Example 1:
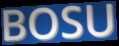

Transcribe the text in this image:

BOSU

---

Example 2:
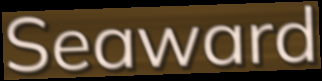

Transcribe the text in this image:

Seaward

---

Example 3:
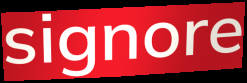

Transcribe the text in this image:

signore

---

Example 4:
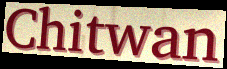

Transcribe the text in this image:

Chitwan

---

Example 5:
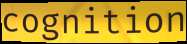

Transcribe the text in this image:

cognition